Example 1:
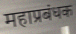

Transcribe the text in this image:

महाप्रबंधक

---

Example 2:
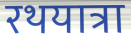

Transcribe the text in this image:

रथयात्रा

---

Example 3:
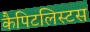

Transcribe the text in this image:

कैपिटलिस्टस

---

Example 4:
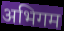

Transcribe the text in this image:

अभिगम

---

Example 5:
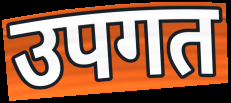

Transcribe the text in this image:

उपगत